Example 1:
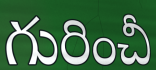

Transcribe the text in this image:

గురించీ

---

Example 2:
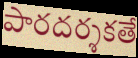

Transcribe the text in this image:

పారదర్శకతే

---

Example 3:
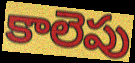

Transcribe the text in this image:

కాలెపు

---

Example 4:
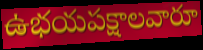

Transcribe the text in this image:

ఉభయపక్షాలవారూ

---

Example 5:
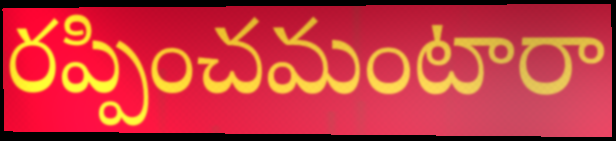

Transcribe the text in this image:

రప్పించమంటారా